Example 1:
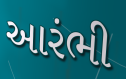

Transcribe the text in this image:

આરંભી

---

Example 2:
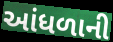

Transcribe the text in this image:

આંધળાની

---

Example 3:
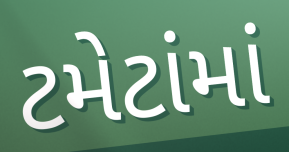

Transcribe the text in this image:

ટમેટાંમાં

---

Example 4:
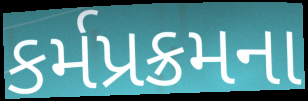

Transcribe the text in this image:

કર્મપ્રક્રમના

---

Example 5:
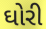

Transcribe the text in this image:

ઘોરી